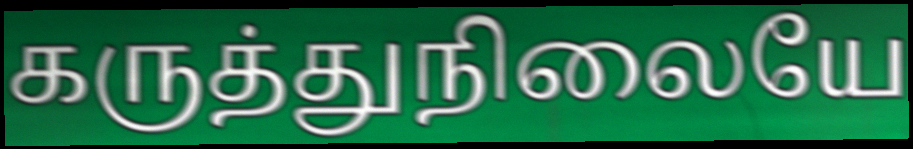
கருத்துநிலையே